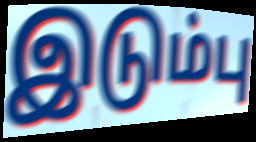
இடும்பு